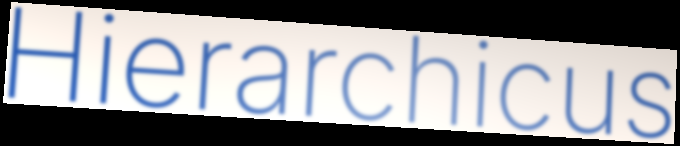
Hierarchicus